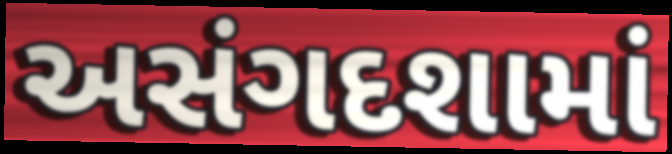
અસંગદશામાં